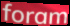
foram